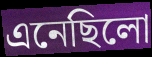
এনেছিলো